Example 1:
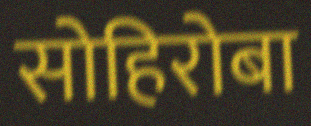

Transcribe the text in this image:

सोहिरोबा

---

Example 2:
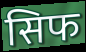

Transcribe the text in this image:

सिफ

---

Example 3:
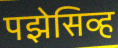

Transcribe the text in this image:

पझेसिव्ह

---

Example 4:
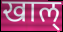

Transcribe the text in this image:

खाल्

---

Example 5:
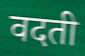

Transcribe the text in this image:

वदती